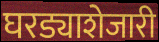
घरड्याशेजारी